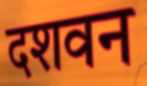
दशवन